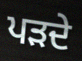
ਪੜਦੇ